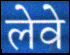
लेवे